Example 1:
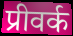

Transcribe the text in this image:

प्रीवर्क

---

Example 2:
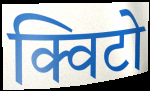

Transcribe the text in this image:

क्विटो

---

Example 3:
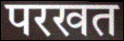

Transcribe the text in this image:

परखत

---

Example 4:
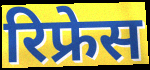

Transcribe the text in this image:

रिफ्रेस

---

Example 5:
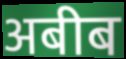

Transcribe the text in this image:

अबीब